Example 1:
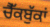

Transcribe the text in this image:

ਚੈੱਕਬੁੱਕਾਂ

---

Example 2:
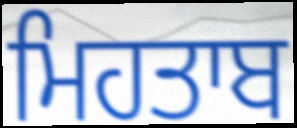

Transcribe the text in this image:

ਮਿਹਤਾਬ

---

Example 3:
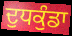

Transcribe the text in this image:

ਦੁਧਕੁੰਡਾ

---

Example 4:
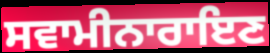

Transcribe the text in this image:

ਸਵਾਮੀਨਾਰਾਇਣ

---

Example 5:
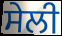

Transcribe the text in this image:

ਸੇਲੀ